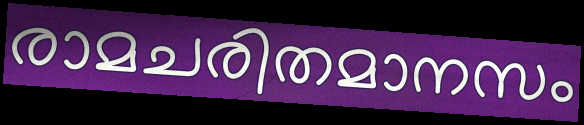
രാമചരിതമാനസം